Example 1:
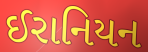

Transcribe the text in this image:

ઈરાનિયન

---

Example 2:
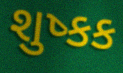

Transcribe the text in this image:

શુષ્કક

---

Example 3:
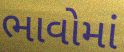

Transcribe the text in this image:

ભાવોમાં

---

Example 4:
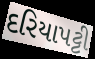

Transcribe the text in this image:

દરિયાપટ્ટી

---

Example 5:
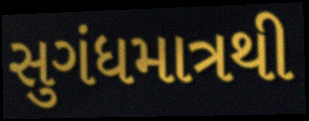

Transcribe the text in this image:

સુગંધમાત્રથી